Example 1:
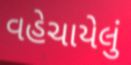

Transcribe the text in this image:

વહેચાયેલું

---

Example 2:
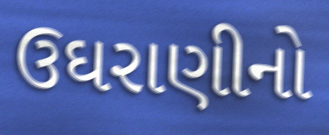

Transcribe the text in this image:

ઉઘરાણીનો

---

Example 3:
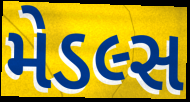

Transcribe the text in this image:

મેડલ્સ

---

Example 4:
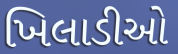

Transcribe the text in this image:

ખિલાડીઓ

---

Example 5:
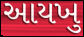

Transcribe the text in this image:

આયખુ